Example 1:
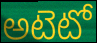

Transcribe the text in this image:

అటెటో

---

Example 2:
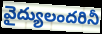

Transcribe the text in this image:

వైద్యులందరినీ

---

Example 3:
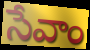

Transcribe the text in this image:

సేవాం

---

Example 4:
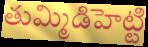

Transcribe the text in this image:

తుమ్మిడిహెట్టి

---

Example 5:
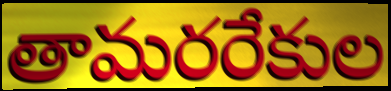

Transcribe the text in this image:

తామరరేకుల